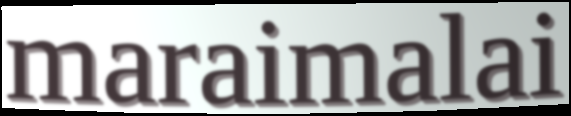
maraimalai